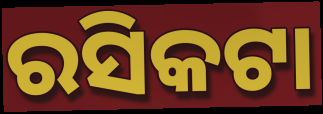
ରସିକଟା